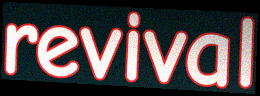
revival